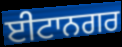
ਈਟਾਨਗਰ